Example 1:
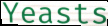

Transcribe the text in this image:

Yeasts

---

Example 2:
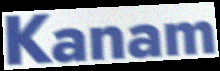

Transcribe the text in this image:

Kanam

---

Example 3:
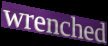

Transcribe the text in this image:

wrenched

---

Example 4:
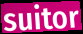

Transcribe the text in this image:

suitor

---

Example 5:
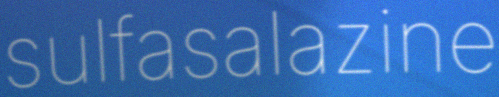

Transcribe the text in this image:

sulfasalazine